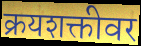
क्रयशक्तीवर